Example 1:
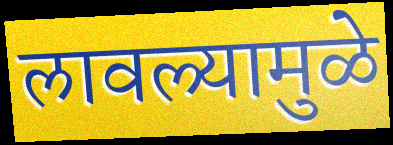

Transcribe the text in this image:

लावल्यामुळे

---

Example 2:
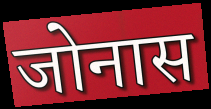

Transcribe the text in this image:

जोनास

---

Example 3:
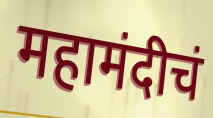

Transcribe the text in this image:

महामंदीचं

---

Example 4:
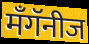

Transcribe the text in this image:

मँगॅनीज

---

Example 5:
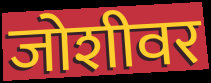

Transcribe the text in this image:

जोशीवर